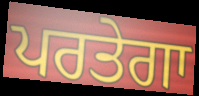
ਪਰਤੇਗਾ